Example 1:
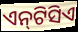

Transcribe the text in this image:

ଏନ୍‌ଟିସିଏ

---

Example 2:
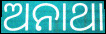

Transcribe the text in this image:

ଅନାଥା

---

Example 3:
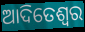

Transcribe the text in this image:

ଆଦିତେଶ୍ଵର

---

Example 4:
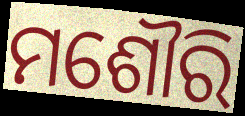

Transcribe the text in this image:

ମଶୌରି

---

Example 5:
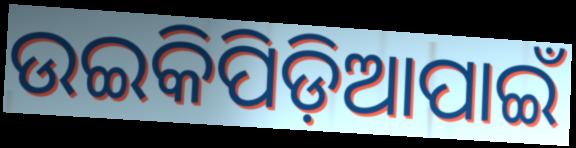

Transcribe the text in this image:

ଉଇକିପିଡ଼ିଆପାଇଁ